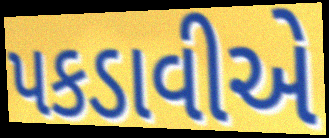
પકડાવીએ